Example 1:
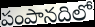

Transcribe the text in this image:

పంపానదిలో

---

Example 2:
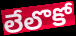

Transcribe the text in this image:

లేలొకో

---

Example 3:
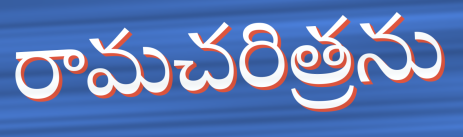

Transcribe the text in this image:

రామచరిత్రను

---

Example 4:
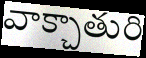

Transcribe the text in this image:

వాక్చాతురి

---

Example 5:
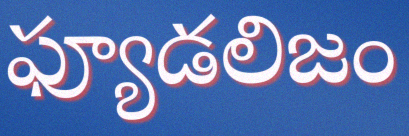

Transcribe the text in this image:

ఫ్యూడలిజం